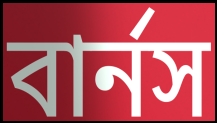
বার্নস